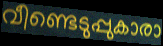
വീണ്ടെടുപ്പുകാരാ